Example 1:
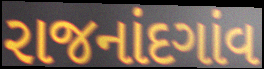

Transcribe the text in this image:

રાજનાંદગાંવ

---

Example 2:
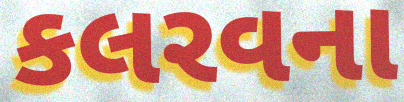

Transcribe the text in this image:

કલરવના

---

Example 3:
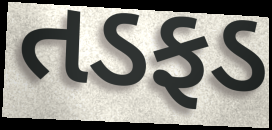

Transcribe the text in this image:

તડફડ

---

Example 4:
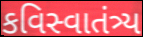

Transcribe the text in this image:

કવિસ્વાતંત્ર્ય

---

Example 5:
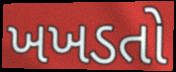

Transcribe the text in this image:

ખખડતો